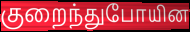
குறைந்துபோயின